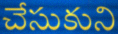
చేసుకుని